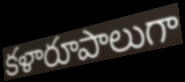
కళారూపాలుగా